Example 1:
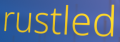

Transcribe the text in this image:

rustled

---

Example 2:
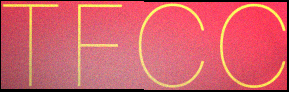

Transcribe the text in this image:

TFCC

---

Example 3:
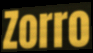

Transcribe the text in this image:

Zorro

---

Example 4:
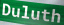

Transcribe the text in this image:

Duluth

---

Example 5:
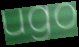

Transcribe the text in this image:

ugo